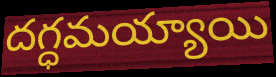
దగ్ధమయ్యాయి